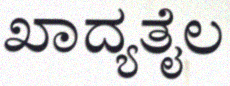
ಖಾದ್ಯತೈಲ